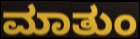
ಮಾತುಂ